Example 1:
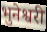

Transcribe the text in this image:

भुनेश्वरी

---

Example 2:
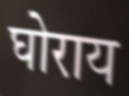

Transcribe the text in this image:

घोराय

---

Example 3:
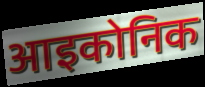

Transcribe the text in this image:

आइकोनिक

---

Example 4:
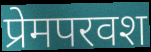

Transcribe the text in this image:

प्रेमपरवश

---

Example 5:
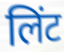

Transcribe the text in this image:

लिंट